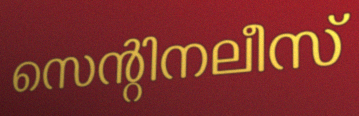
സെന്റിനലീസ്